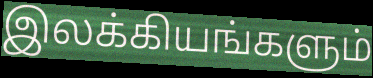
இலக்கியங்களும்